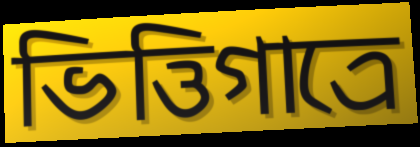
ভিত্তিগাত্রে